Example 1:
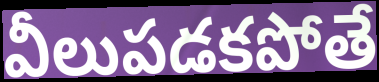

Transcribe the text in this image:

వీలుపడకపోతే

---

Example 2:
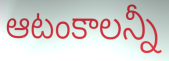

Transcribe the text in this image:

ఆటంకాలన్నీ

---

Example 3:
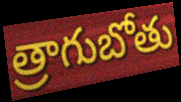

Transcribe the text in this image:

త్రాగుబోతు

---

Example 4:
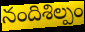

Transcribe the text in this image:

నందిశిల్పం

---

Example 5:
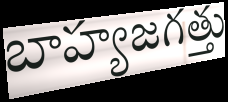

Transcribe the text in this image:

బాహ్యజగత్తు